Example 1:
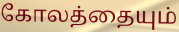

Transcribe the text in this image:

கோலத்தையும்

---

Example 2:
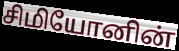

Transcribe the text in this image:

சிமியோனின்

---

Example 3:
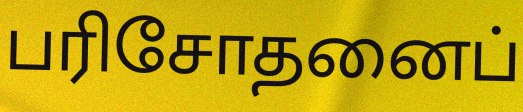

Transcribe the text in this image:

பரிசோதனைப்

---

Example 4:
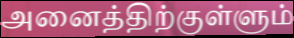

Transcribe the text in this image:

அனைத்திற்குள்ளும்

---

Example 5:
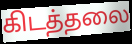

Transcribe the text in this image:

கிடத்தலை